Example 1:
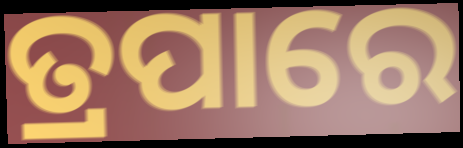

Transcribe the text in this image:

ତ୍ରପାରେ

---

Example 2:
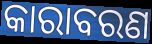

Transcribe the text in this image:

କାରାବରଣ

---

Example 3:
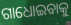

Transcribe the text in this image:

ଗାଧୋଇବାକୁ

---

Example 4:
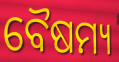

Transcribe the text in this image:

ବୈଷମ୍ୟ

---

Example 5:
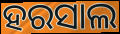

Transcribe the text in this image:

ହରସାଲ